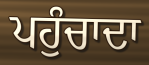
ਪਹੁੰਚਾਦਾ